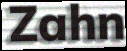
Zahn